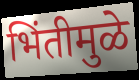
भिंतीमुळे